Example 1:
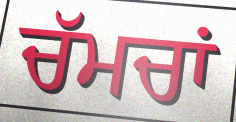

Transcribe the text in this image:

ਚੱਮਚਾਂ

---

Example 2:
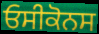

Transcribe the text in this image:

ਓਸੀਕੋਨਸ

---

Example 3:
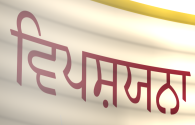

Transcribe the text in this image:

ਵਿਪਸ਼ਯਨਾ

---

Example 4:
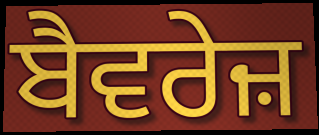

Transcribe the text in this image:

ਬੈਵਰੇਜ਼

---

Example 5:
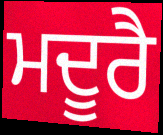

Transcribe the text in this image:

ਮਦੂਰੈ